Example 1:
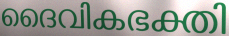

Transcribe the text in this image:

ദൈവികഭക്തി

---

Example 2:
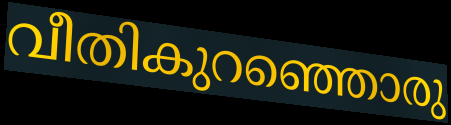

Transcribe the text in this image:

വീതികുറഞ്ഞൊരു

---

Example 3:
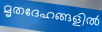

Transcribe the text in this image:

മൃതദേഹങ്ങളിൽ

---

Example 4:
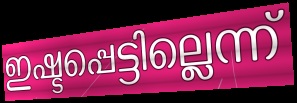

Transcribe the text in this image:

ഇഷ്ടപ്പെട്ടില്ലെന്ന്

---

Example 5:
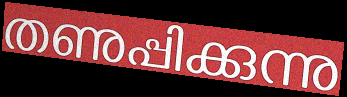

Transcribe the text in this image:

തണുപ്പിക്കുന്നു